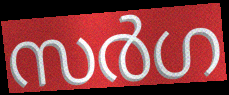
സർഗ